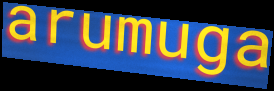
arumuga